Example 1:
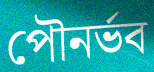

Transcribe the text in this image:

পৌনর্ভব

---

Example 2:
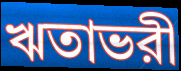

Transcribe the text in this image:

ঋতাভরী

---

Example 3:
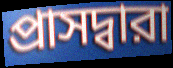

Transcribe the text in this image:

প্রাসদ্বারা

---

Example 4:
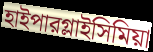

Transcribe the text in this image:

হাইপারগ্লাইসিমিয়া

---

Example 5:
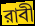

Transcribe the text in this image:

রাবী